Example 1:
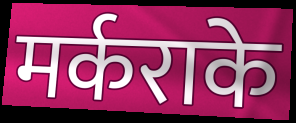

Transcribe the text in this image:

मर्कराके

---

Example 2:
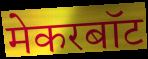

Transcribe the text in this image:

मेकरबॉट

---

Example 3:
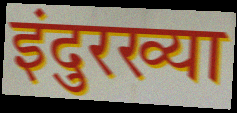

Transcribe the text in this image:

इंदुरख्या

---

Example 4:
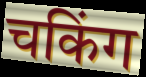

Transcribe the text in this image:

चकिंग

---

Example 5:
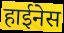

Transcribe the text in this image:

हाईनेस